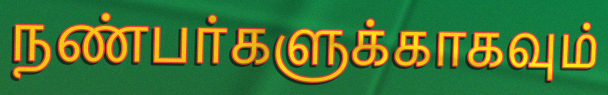
நண்பர்களுக்காகவும்